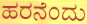
ಹರನೆಂದು